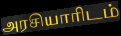
அரசியாரிடம்